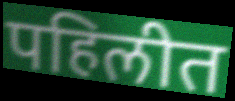
पहिलीत